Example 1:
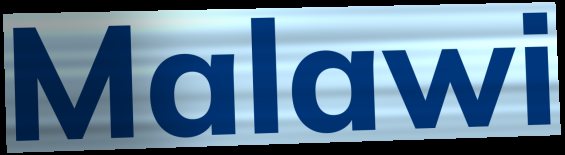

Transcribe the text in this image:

Malawi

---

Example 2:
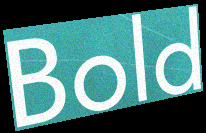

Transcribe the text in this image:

Bold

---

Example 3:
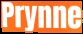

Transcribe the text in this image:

Prynne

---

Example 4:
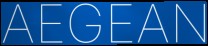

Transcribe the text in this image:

AEGEAN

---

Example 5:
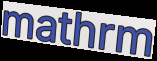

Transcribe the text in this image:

mathrm